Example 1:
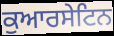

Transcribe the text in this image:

ਕੁਆਰਸੇਟਿਨ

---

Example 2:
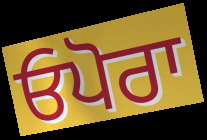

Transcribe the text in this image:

ਓਪੋਰਾ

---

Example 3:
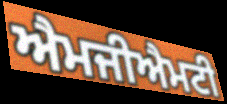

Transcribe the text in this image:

ਐਮਜੀਐਮਟੀ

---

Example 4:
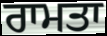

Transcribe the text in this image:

ਰਾਮਤਾ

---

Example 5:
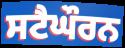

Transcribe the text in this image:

ਸਟੈਘੌਰਨ